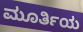
ಮೂರ್ತಿಯ